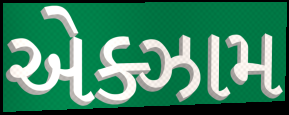
એક્ઝામ